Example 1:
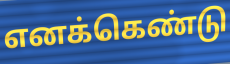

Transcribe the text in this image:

எனக்கெண்டு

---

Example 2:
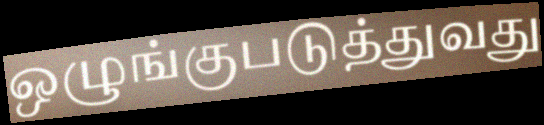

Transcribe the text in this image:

ஒழுங்குபடுத்துவது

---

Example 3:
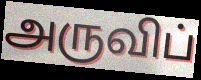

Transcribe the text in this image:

அருவிப்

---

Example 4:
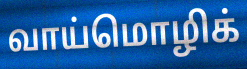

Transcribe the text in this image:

வாய்மொழிக்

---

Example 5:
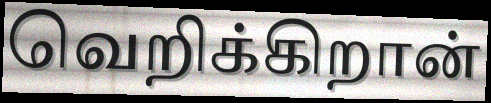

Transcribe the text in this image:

வெறிக்கிறான்